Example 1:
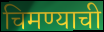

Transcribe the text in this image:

चिमण्याची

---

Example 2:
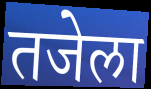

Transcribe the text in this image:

तजेला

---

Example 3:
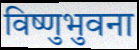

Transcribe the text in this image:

विष्णुभुवना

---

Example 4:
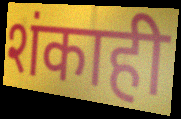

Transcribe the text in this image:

शंकाही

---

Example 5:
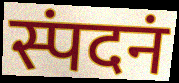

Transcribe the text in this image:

स्पंदनं